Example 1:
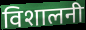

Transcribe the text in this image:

विशालनी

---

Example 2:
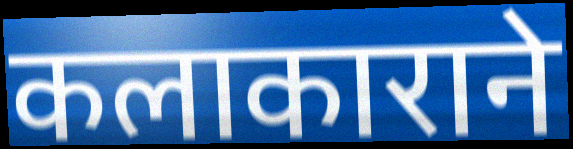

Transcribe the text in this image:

कलाकाराने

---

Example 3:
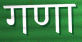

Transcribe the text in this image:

गणा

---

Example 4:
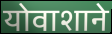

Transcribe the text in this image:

योवाशाने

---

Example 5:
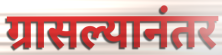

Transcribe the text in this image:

ग्रासल्यानंतर